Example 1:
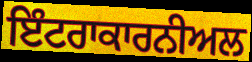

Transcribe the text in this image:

ਇੰਟਰਾਕਾਰਨੀਅਲ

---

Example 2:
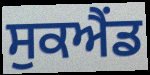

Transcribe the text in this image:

ਸੁਕਐਂਡ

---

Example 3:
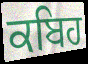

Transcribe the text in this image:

ਕਬਿਹ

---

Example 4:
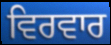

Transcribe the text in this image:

ਵਿਰਵਾਰ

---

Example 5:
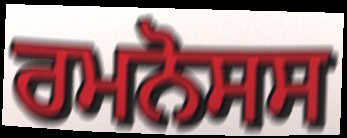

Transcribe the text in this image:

ਰਮਨੋਸਸ